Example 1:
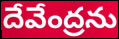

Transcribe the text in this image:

దేవేంద్రను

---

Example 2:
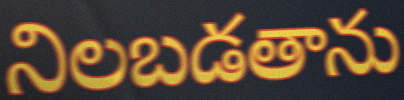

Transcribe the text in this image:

నిలబడతాను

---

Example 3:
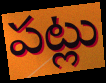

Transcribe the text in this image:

పట్లు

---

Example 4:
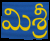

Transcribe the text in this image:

మిశ్రీ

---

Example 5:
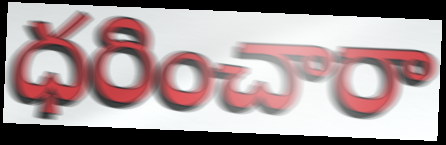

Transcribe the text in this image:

ధరించారా